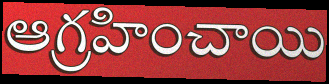
ఆగ్రహించాయి